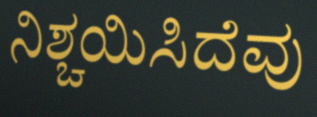
ನಿಶ್ಚಯಿಸಿದೆವು